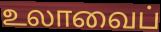
உலாவைப்